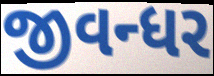
જીવન્ધર